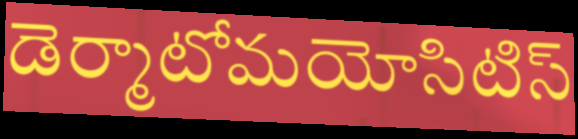
డెర్మాటోమయోసిటిస్